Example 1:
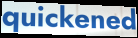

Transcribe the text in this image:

quickened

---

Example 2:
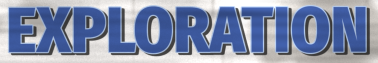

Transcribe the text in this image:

EXPLORATION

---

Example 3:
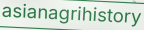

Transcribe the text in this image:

asianagrihistory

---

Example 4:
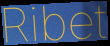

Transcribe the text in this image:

Ribet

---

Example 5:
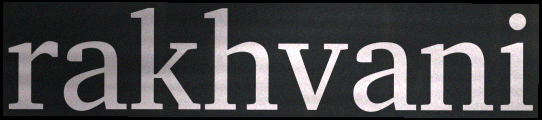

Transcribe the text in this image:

rakhvani